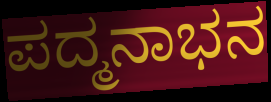
ಪದ್ಮನಾಭನ